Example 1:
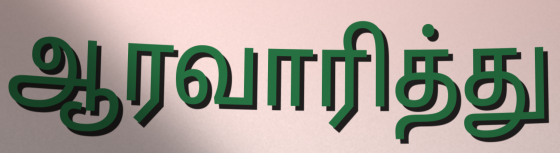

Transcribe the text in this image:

ஆரவாரித்து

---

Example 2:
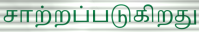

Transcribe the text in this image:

சாற்றப்படுகிறது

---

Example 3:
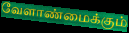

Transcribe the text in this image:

வேளாண்மைக்கும்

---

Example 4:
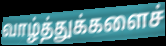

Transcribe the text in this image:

வாழ்த்துக்களைச்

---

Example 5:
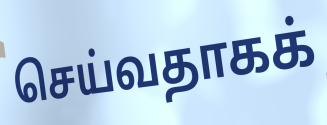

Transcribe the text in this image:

செய்வதாகக்